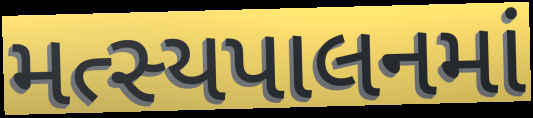
મત્સ્યપાલનમાં